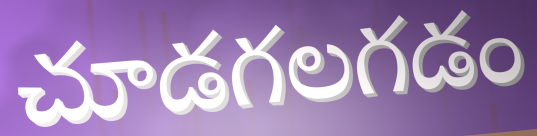
చూడగలగడం